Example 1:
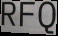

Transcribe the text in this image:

RFQ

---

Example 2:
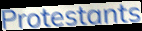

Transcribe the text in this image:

Protestants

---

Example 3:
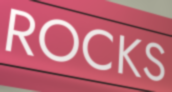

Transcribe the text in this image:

ROCKS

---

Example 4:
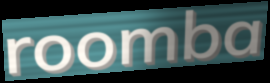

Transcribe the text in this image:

roomba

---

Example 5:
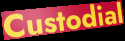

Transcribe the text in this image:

Custodial